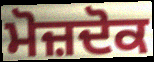
ਮੋਜ਼ਦੋਕ